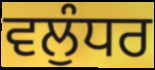
ਵਲੁੰਧਰ